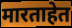
मारताहेत